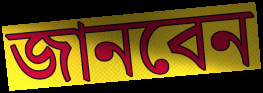
জানবেন